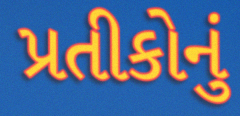
પ્રતીકોનું